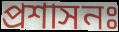
প্ৰশাসনঃ